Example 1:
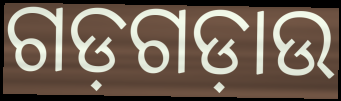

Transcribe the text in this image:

ଗଡ଼ଗଡ଼ାଉ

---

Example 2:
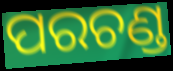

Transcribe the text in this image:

ପରଚଣ୍ଡ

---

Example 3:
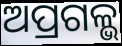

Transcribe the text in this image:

ଅପ୍ରଗଳ୍ଭ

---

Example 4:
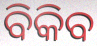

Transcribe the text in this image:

ବିକିବ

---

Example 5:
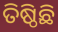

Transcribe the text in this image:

ତିଷ୍ଠିଛି